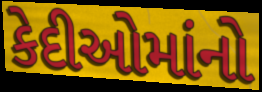
કેદીઓમાંનો